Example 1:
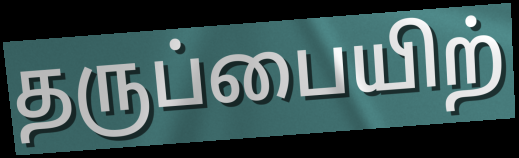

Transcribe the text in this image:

தருப்பையிற்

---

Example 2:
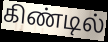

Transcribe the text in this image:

கிண்டில்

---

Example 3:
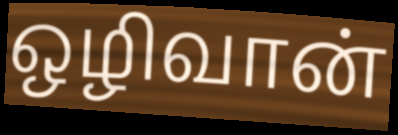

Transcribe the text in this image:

ஒழிவான்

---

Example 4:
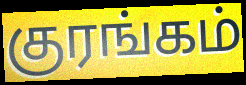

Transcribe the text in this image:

குரங்கம்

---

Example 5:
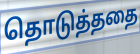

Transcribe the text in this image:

தொடுத்ததை